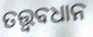
ତତ୍ତ୍ୱବଧାନ